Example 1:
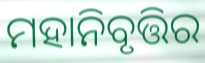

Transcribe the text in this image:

ମହାନିବୃତ୍ତିର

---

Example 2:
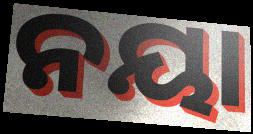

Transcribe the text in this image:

ନୟା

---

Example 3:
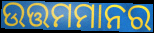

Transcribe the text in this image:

ଉତ୍ତମମାନର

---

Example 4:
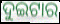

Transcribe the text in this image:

ଦୁଇଟାର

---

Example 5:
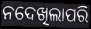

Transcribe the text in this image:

ନଦେଖିଲାପରି